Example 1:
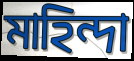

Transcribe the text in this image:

মাহিন্দা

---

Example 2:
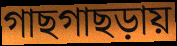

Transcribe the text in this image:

গাছগাছড়ায়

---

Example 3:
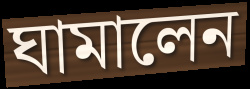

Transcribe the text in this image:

ঘামালেন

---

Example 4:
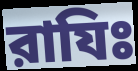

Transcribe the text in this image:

রাযিঃ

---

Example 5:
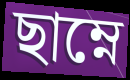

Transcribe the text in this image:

ছাম্নে